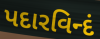
પદારવિન્દં